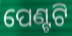
ପେଣ୍ଟଟି